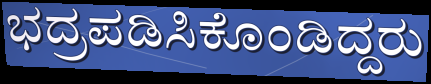
ಭದ್ರಪಡಿಸಿಕೊಂಡಿದ್ದರು